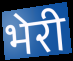
भेरी